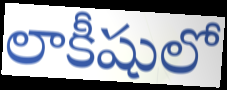
లాకీషులో